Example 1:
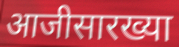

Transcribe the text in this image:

आजीसारख्या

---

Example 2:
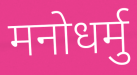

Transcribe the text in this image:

मनोधर्मु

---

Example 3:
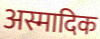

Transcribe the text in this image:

अस्मादिक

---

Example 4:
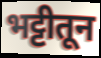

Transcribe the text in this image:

भट्टीतून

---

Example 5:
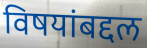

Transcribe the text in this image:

विषयांबद्दल